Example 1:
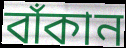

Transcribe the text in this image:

বাঁকান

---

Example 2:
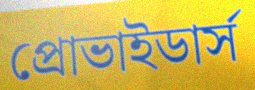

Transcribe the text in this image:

প্রোভাইডার্স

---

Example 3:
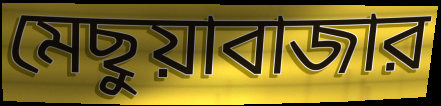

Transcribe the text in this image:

মেছুয়াবাজার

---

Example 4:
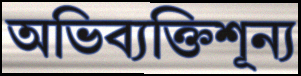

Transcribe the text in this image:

অভিব্যক্তিশূন্য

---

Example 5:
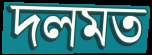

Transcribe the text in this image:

দলমত